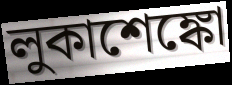
লুকাশেঙ্কো